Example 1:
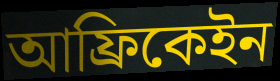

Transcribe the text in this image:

আফ্রিকেইন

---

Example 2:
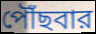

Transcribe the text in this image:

পৌঁছবার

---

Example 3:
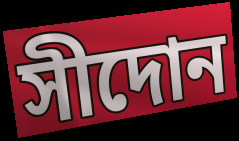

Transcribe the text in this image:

সীদোন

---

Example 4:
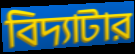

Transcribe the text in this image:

বিদ্যাটার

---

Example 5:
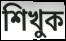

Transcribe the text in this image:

শিখুক